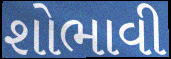
શોભાવી